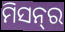
ମିସନ୍‍ର